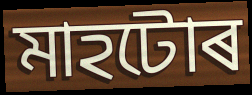
মাহটোৰ